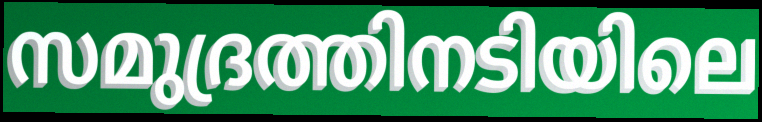
സമുദ്രത്തിനടിയിലെ